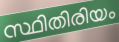
സ്ഥിതിരിയം